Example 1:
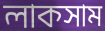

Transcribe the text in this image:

লাকসাম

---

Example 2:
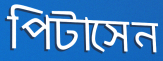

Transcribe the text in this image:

পিটাসেন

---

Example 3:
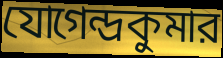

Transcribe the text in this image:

যোগেন্দ্রকুমার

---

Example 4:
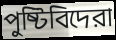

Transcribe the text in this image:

পুষ্টিবিদেরা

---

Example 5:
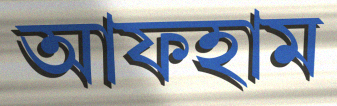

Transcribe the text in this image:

আফহাম